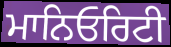
ਮਾਨਿਓਰਿਟੀ